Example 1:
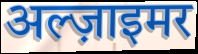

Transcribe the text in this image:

अल्ज़ाइमर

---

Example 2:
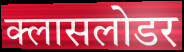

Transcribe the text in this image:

क्लासलोडर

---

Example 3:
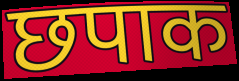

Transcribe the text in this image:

छपाक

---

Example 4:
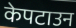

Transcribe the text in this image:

केपटाउन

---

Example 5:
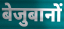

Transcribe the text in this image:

बेजुबानों